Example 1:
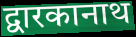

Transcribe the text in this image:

द्वारकानाथ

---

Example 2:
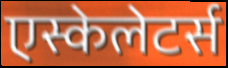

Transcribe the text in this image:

एस्केलेटर्स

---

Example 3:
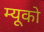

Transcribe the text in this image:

म्यूको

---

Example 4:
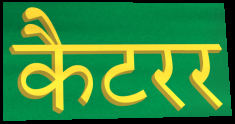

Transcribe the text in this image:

कैटरर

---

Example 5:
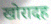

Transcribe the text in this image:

खोरादह